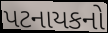
પટનાયકનો